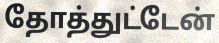
தோத்துட்டேன்